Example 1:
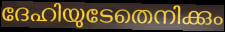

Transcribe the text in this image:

ദേഹിയുടേതെനിക്കും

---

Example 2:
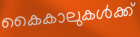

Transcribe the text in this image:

കൈകാലുകൾക്ക്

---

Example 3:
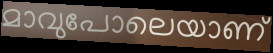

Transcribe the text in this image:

മാവുപോലെയാണ്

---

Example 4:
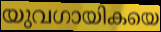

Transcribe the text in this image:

യുവഗായികയെ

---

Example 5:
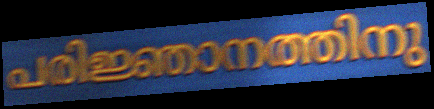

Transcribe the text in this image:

പരിജ്ഞാനത്തിനു